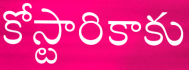
కోస్టారికాకు